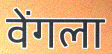
वेंगला